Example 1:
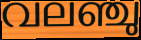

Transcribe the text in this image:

വലഞ്ചു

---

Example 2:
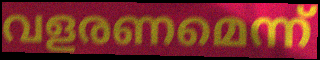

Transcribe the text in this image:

വളരണമെന്ന്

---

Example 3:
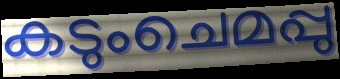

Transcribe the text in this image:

കടുംചെമപ്പു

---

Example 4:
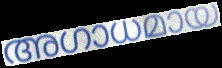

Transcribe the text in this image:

അഗാധമായ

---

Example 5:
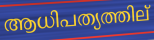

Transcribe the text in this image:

ആധിപത്യത്തില്